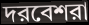
দরবেশরা